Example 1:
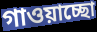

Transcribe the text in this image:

গাওয়াচ্ছো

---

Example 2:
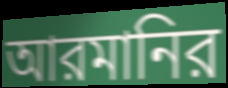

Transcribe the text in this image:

আরমানির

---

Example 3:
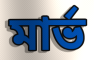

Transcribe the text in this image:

মার্ভ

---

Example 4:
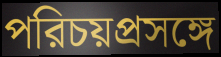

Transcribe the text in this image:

পরিচয়প্রসঙ্গে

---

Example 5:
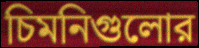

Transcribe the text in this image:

চিমনিগুলোর